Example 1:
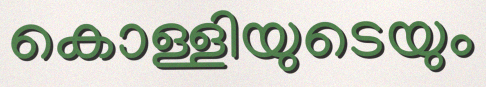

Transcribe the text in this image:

കൊള്ളിയുടെയും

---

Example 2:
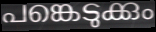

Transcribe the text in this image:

പങ്കെടുക്കും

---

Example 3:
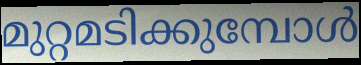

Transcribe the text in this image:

മുറ്റമടിക്കുമ്പോൾ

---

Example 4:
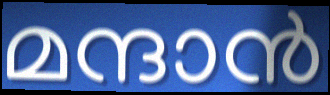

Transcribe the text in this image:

മന്ദാൻ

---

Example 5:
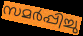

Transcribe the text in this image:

സമർപ്പിച്ചു